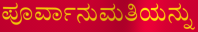
ಪೂರ್ವಾನುಮತಿಯನ್ನು